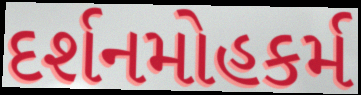
દર્શનમોહકર્મ